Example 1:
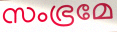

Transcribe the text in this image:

സംഭ്രമേ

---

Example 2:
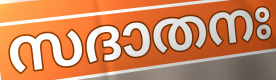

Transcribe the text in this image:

സദാതനഃ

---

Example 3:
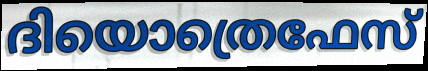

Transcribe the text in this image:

ദിയൊത്രെഫേസ്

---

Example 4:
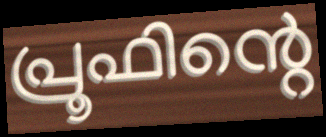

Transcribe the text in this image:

പ്രൂഫിന്റെ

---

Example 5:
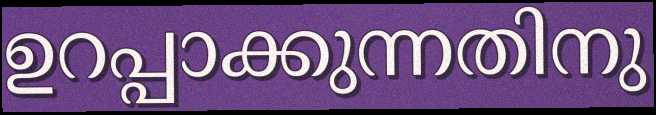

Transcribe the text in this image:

ഉറപ്പാക്കുന്നതിനു